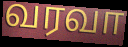
வரவா